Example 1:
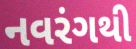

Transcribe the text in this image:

નવરંગથી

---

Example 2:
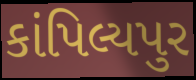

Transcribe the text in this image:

કાંપિલ્યપુર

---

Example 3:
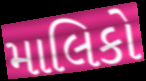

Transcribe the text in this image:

માલિકો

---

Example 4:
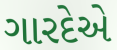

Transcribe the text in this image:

ગારદેએ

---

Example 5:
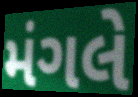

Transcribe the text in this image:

મંગલે